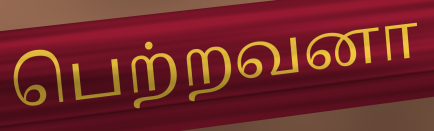
பெற்றவனா